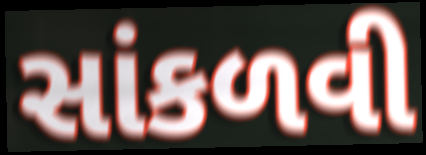
સાંકળવી